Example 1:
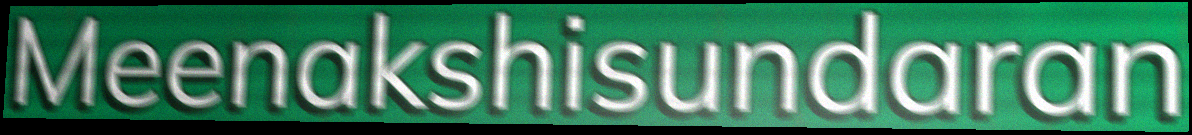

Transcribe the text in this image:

Meenakshisundaran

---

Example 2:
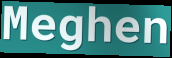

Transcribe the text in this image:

Meghen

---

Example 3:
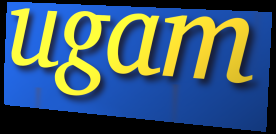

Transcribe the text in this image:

ugam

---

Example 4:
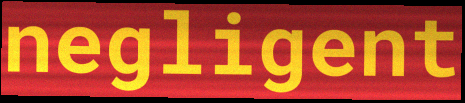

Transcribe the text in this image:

negligent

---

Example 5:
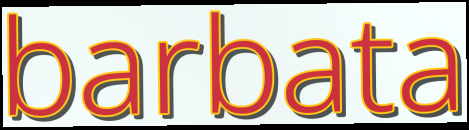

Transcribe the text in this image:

barbata